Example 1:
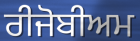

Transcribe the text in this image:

ਰੀਜੋਬੀਅਮ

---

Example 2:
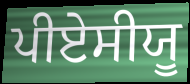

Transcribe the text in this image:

ਪੀਏਸੀਯੂ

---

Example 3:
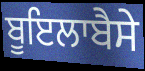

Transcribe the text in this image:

ਬੂਇਲਾਬੈਸੇ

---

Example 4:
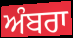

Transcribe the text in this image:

ਅੰਬਰਾ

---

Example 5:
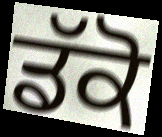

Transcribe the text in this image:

ਡੱਕੋ